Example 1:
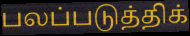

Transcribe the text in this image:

பலப்படுத்திக்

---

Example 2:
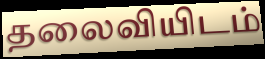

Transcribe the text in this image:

தலைவியிடம்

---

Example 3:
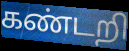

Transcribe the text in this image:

கண்டறி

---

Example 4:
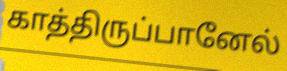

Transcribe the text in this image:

காத்திருப்பானேல்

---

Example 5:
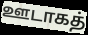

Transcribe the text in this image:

ஊடாகத்